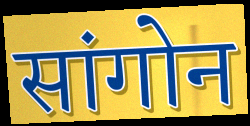
सांगोन